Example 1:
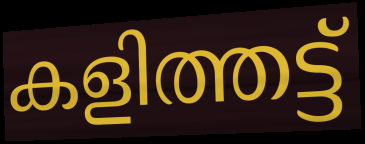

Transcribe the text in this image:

കളിത്തട്ട്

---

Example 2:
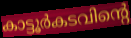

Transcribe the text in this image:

കാട്ടൂർകടവിന്റെ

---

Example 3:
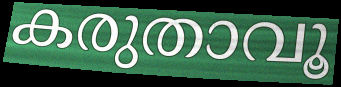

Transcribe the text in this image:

കരുതാവൂ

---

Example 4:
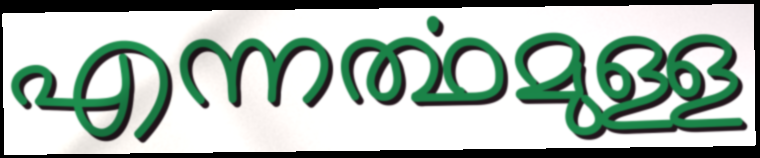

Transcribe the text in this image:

എന്നൎത്ഥമുള്ള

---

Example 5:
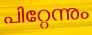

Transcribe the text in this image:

പിറ്റേന്നും